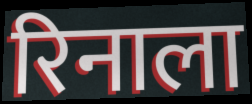
रिनाला